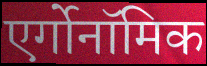
एर्गोनॉमिक